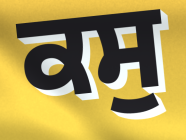
ਕਸੁ